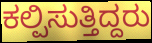
ಕಲ್ಪಿಸುತ್ತಿದ್ದರು